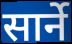
सार्ने